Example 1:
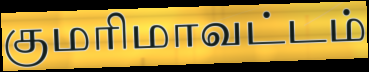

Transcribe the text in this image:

குமரிமாவட்டம்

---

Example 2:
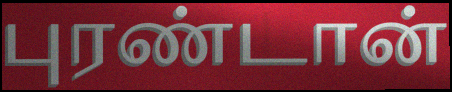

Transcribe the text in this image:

புரண்டான்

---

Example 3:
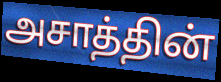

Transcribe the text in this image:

அசாத்தின்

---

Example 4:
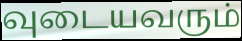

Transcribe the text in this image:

வுடையவரும்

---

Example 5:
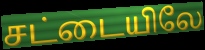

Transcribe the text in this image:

சட்டையிலே